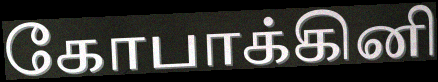
கோபாக்கினி